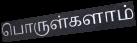
பொருள்களாம்